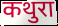
कथुरा